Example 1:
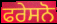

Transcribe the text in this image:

ਫਰੇਸਨੋ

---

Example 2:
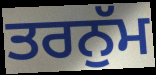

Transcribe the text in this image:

ਤਰਨੁੱਮ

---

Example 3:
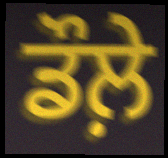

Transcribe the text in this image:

ਡੌਲ਼ੇ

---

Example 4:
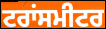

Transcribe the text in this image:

ਟਰਾਂਸਮੀਟਰ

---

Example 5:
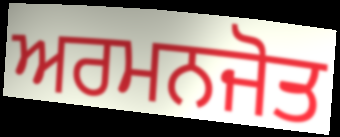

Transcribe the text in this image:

ਅਰਮਨਜੋਤ